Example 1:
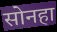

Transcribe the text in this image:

सोनहा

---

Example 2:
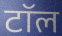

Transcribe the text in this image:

टॉल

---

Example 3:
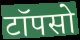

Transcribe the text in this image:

टॉपसो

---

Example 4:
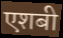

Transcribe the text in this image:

एशबी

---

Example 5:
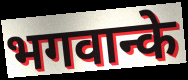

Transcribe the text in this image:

भगवान्के